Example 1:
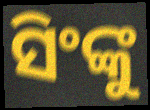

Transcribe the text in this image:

ସିଂଙ୍କୁ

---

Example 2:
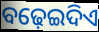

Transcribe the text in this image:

ବଢ଼େଇଦିଏ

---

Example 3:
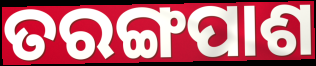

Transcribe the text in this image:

ତରଙ୍ଗପାଶ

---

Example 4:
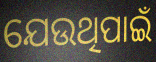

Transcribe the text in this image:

ଯେଉଥିପାଇଁ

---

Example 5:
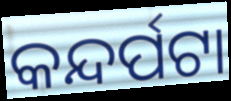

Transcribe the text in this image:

କନ୍ଦର୍ପଟା